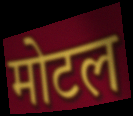
मोटल